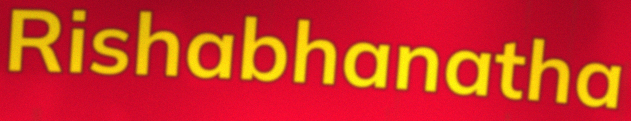
Rishabhanatha